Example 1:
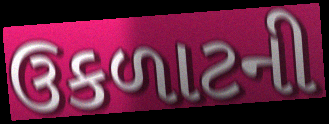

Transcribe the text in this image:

ઉકળાટની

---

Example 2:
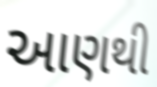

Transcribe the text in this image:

આણથી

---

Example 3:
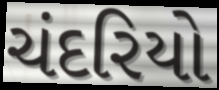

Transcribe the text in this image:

ચંદરિયો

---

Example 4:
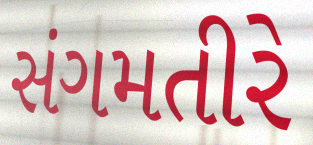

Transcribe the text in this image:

સંગમતીરે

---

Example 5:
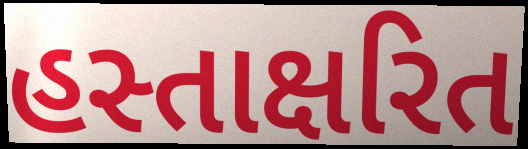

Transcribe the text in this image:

હસ્તાક્ષરિત